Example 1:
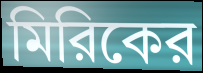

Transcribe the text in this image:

মিরিকের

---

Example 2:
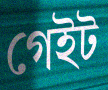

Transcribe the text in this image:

গেইট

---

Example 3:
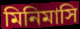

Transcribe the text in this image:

মিনিমাসি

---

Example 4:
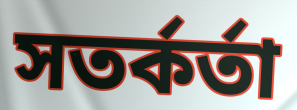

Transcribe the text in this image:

সতর্কর্তা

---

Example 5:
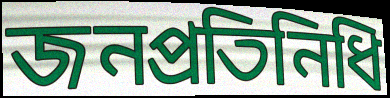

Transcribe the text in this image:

জনপ্রতিনিধি